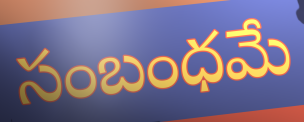
సంబంధమే